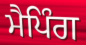
ਮੈਪਿੰਗ